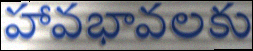
హావభావలకు